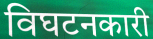
विघटनकारी